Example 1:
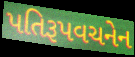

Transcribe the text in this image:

પતિરૂપવચનેન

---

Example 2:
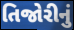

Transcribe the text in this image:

તિજોરીનું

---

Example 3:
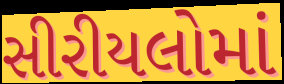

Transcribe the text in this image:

સીરીયલોમાં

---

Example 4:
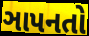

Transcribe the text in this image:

ઞાપનતો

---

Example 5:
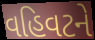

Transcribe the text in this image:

વહિવટને